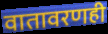
वातावरणही